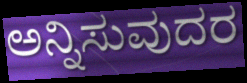
ಅನ್ನಿಸುವುದರ